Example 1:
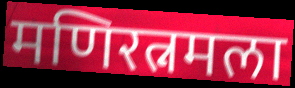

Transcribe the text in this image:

मणिरत्नमला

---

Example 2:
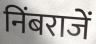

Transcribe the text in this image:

निंबराजें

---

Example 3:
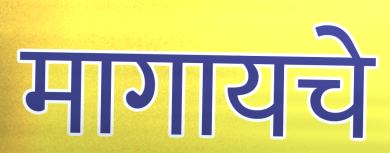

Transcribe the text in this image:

मागायचे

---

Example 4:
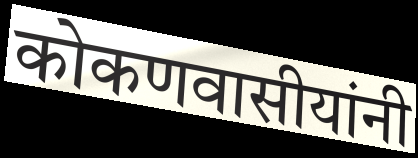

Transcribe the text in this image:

कोकणवासीयांनी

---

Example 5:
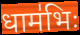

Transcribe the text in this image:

धाम॑भिः